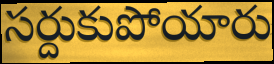
సర్దుకుపోయారు